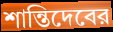
শান্তিদেবের